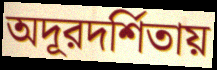
অদূরদর্শিতায়